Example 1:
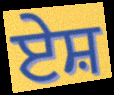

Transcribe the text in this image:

ਏਸ਼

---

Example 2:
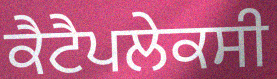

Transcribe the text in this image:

ਕੈਟੈਪਲੇਕਸੀ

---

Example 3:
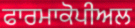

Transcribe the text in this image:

ਫਾਰਮਾਕੋਪੀਅਲ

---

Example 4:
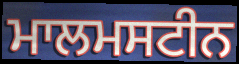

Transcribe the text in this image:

ਮਾਲਮਸਟੀਨ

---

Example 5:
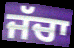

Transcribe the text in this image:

ਜੱਚਾ